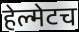
हेल्मेटच